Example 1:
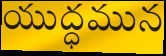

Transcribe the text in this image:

యుద్ధమున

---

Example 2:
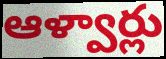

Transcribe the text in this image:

ఆళ్వార్లు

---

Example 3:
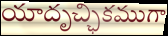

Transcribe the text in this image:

యాదృచ్ఛికముగా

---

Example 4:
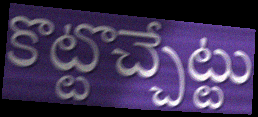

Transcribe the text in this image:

కొట్టొచ్చేట్టు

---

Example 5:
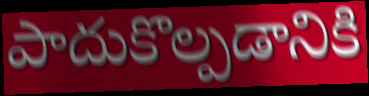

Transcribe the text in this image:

పాదుకొల్పడానికి